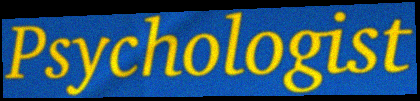
Psychologist